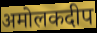
अमोलकदीप